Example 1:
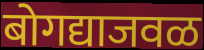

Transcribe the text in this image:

बोगद्याजवळ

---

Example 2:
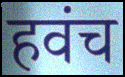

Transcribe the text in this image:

हवंच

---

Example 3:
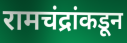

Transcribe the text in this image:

रामचंद्रांकडून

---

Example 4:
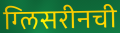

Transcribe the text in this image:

ग्लिसरीनची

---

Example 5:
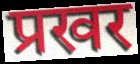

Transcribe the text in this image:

प्रखर